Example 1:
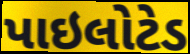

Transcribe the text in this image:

પાઇલોટેડ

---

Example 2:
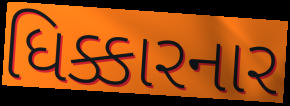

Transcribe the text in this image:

ધિક્કારનાર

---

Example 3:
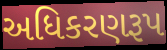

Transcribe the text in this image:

અધિકરણરૂપ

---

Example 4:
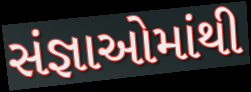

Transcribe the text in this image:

સંજ્ઞાઓમાંથી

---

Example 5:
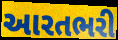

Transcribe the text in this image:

આરતભરી